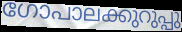
ഗോപാലക്കുറുപ്പു